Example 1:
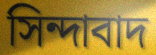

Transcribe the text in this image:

সিন্দাবাদ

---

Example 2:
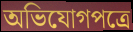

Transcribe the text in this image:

অভিযোগপত্রে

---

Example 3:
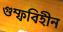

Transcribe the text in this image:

গুম্ফবিহীন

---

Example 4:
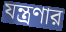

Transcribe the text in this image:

যন্ত্রণার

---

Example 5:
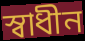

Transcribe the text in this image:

স্বাধীন